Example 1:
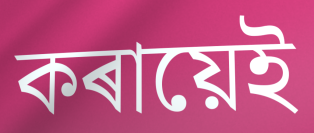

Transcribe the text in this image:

কৰায়েই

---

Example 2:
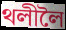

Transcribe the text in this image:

থলীলৈ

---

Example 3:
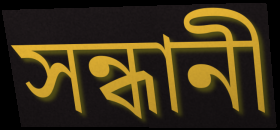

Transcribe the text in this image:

সন্ধানী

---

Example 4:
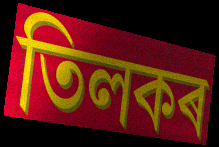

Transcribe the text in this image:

তিলকৰ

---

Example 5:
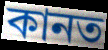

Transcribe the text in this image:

কানত